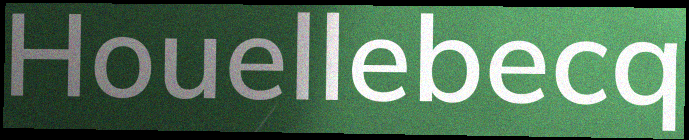
Houellebecq